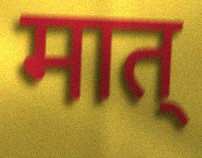
मात्